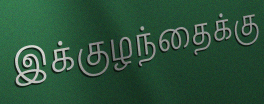
இக்குழந்தைக்கு